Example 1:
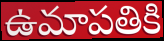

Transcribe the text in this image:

ఉమాపతికి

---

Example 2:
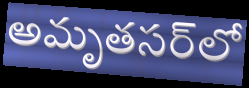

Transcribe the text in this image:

అమృతసర్‌లో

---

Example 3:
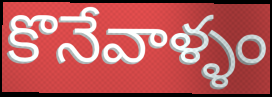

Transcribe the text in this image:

కొనేవాళ్ళం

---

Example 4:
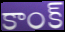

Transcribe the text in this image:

కాంక్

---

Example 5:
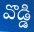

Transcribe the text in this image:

వొడ్డి